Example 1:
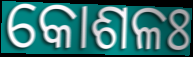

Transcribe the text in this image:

କୋଶଳଃ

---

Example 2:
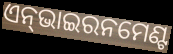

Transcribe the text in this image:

ଏନ୍‌ଭାଇରନମେଣ୍ଟ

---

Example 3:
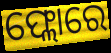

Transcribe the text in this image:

ଫ୍ଲୋରେ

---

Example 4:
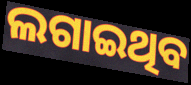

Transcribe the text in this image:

ଲଗାଇଥିବ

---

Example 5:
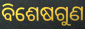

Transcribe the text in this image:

ବିଶେଷଗୁଣ